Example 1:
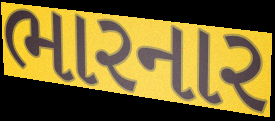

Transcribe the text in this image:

ભારનાર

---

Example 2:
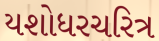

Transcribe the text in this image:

યશોધરચરિત્ર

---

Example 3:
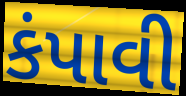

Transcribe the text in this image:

કંપાવી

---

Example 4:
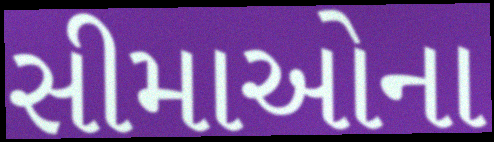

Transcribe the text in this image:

સીમાઓના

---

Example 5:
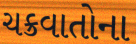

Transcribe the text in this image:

ચક્રવાતોના